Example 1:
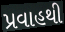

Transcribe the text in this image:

પ્રવાહથી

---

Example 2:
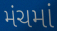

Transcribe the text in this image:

મંચમાં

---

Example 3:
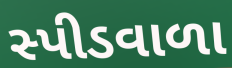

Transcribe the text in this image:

સ્પીડવાળા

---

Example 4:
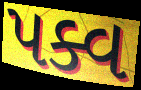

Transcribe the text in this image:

પક્વ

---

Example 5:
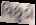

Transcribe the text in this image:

વિછુંડો